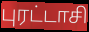
புரட்டாசி